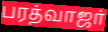
பரத்வாஜர்